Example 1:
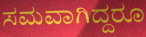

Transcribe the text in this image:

ಸಮವಾಗಿದ್ದರೂ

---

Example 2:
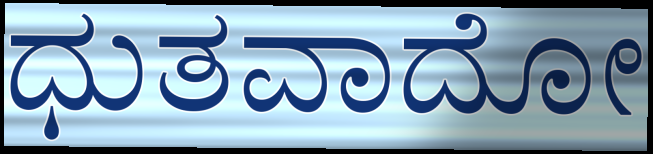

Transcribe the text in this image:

ಧುತವಾದೋ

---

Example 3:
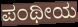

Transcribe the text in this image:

ಪಂಥೀಯ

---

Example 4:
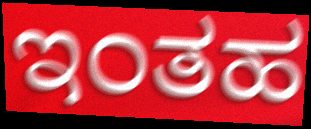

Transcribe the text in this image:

ಇಂತಹ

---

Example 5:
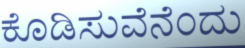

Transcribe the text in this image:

ಕೊಡಿಸುವೆನೆಂದು